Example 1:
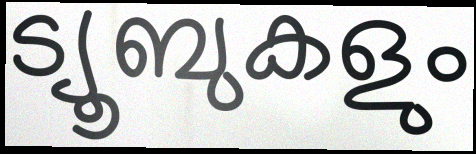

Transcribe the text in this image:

ട്യൂബുകളും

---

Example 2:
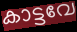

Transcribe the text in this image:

കാട്ടവേ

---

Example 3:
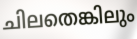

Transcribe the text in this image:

ചിലതെങ്കിലും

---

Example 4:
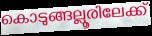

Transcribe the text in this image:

കൊടുങ്ങല്ലൂരിലേക്ക്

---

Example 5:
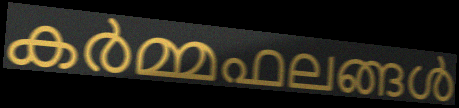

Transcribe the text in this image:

കർമ്മഫലങ്ങൾ